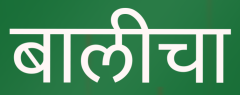
बालीचा